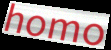
homo